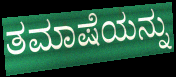
ತಮಾಷೆಯನ್ನು